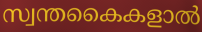
സ്വന്തകൈകളാൽ